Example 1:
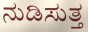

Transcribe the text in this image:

ನುಡಿಸುತ್ತ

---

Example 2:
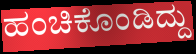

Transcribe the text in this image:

ಹಂಚಿಕೊಂಡಿದ್ದು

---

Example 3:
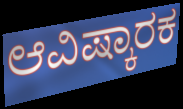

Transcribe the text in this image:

ಆವಿಷ್ಕಾರಕ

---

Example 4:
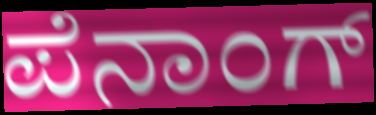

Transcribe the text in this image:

ಪೆನಾಂಗ್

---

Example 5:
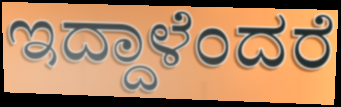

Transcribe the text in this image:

ಇದ್ದಾಳೆಂದರೆ